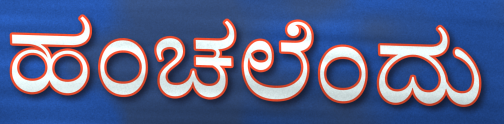
ಹಂಚಲೆಂದು